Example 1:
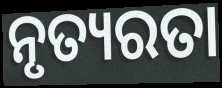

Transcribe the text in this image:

ନୃତ୍ୟରତା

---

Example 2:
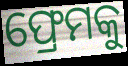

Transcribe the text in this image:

ଫ୍ରେମକୁ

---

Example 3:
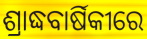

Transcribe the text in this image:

ଶ୍ରାଦ୍ଧବାର୍ଷିକୀରେ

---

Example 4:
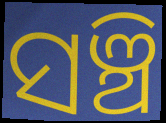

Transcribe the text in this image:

ସଞ୍ଚି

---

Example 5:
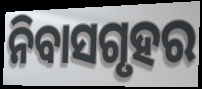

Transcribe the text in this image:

ନିବାସଗୃହର